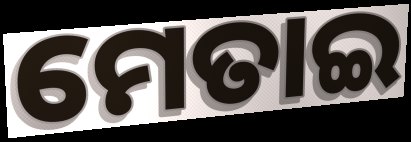
ମେତାଇ